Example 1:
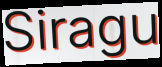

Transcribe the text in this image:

Siragu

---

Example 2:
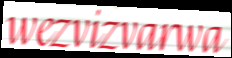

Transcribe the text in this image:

wezvizvarwa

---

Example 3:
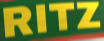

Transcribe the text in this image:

RITZ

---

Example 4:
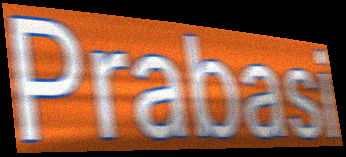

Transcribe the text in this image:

Prabasi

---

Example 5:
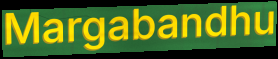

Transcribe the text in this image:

Margabandhu